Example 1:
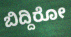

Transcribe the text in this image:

ಬಿದ್ದಿರೋ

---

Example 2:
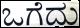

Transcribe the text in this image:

ಒಗೆದು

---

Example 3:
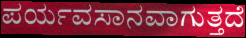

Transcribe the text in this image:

ಪರ್ಯವಸಾನವಾಗುತ್ತದೆ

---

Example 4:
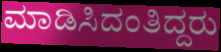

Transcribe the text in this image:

ಮಾಡಿಸಿದಂತಿದ್ದರು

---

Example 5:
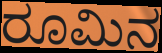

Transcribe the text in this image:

ರೂಮಿನ